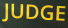
JUDGE